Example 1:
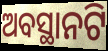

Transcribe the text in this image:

ଅବସ୍ଥାନଟି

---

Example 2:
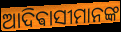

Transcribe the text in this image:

ଆଦିଵାସୀମାନଙ୍କ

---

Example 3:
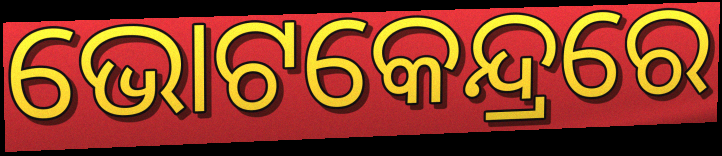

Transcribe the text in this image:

ଭୋଟକେନ୍ଦ୍ରରେ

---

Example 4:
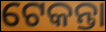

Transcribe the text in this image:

ଟେକନ୍ତା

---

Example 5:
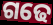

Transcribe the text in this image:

ଗଢେ